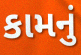
કામનું